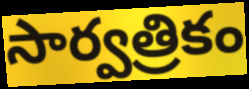
సార్వత్రికం